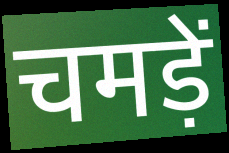
चमड़ें